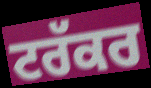
ਟਰੱਕਰ